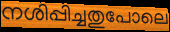
നശിപ്പിച്ചതുപോലെ